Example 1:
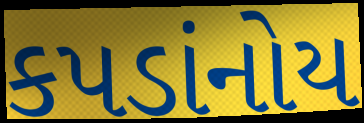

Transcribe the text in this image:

કપડાંનોય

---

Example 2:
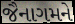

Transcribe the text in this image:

જૈનાગમને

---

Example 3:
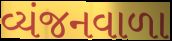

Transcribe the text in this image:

વ્યંજનવાળા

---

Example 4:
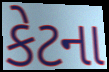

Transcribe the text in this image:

કેટના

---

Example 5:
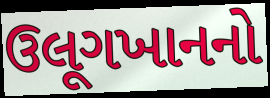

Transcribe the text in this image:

ઉલૂગખાનનો